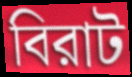
বিরাট